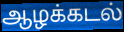
ஆழக்கடல்